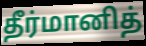
தீர்மானித்